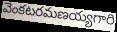
వెంకటరమణయ్యగారి